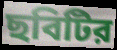
ছবিটির